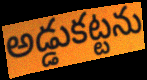
అడ్డుకట్టను